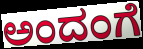
ಅಂದಂಗೆ